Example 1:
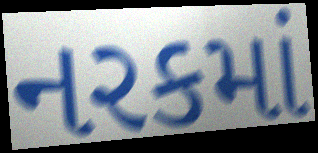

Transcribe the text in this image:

નરકમાં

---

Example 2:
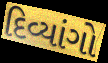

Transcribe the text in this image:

દિવ્યાંગો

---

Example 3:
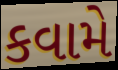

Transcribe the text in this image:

કવામે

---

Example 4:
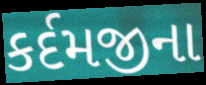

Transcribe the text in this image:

કર્દમજીના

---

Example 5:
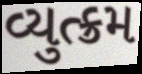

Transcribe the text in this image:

વ્યુત્ક્રમ